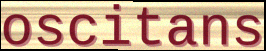
oscitans